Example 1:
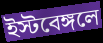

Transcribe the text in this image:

ইস্টবেঙ্গলে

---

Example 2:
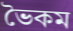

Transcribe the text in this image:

ভৈকম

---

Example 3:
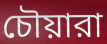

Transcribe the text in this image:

চৌয়ারা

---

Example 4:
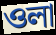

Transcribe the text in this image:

ওলা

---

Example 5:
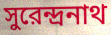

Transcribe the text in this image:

সুরেন্দ্রনাথ